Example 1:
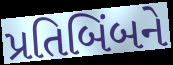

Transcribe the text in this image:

પ્રતિબિંબને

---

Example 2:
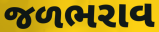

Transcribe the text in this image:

જળભરાવ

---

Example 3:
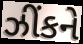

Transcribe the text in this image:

ઝીંકને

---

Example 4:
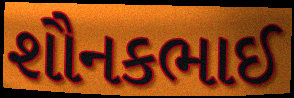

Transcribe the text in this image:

શૌનકભાઈ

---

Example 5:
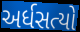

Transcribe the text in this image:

અર્ધસત્યો